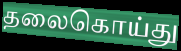
தலைகொய்து